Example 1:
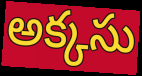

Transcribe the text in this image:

అక్కసు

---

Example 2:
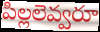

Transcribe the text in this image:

పిల్లలెవ్వరూ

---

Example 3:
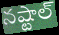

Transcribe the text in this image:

నష్టాల్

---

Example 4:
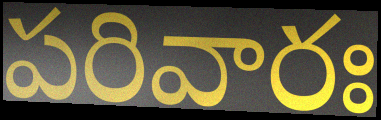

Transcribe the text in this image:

పరివారః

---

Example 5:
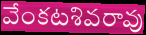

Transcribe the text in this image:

వేంకటశివరావు